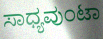
ಸಾಧ್ಯವುಂಟಾ